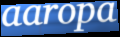
aaropa